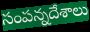
సంపన్నదేశాలు